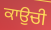
ਕਾਉਚੀ